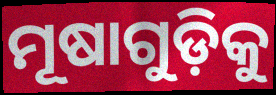
ମୂଷାଗୁଡ଼ିକୁ